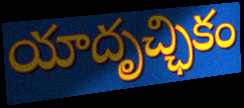
యాదృచ్ఛికం